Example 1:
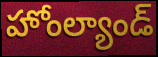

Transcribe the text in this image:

హోంల్యాండ్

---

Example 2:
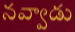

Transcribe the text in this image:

నవ్వాడు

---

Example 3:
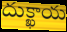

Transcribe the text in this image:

దుక్ఖాయ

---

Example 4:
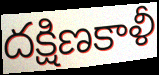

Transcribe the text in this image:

దక్షిణకాళీ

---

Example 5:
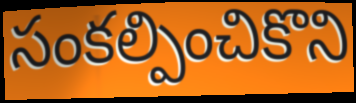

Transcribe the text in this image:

సంకల్పించికొని